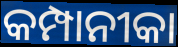
କମ୍ପାନୀକା